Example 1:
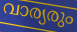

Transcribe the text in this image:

വാര്യരും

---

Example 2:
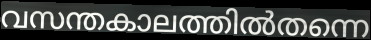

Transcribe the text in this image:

വസന്തകാലത്തിൽതന്നെ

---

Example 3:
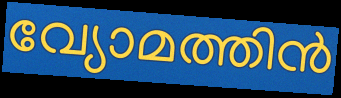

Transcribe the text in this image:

വ്യോമത്തിൻ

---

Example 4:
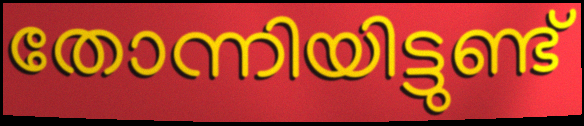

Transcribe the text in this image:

തോന്നിയിട്ടുണ്ട്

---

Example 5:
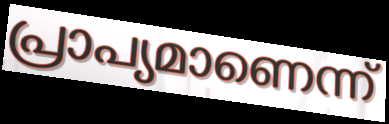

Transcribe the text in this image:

പ്രാപ്യമാണെന്ന്